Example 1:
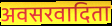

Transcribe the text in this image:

अवसरवादिता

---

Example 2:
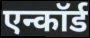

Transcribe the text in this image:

एन्कॉर्ड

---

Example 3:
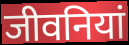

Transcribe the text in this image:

जीवनियां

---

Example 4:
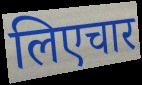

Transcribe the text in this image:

लिएचार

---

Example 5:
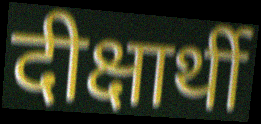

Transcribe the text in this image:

दीक्षार्थी